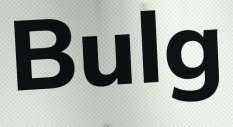
Bulg